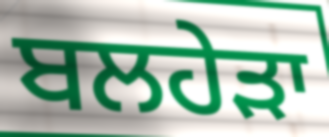
ਬਲਹੇੜਾ